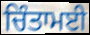
ਚਿੰਤਾਮਈ